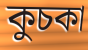
কুচকা